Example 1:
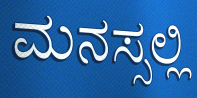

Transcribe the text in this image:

ಮನಸ್ಸಲ್ಲಿ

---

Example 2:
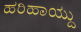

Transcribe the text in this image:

ಹರಿಹಾಯ್ದು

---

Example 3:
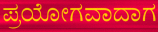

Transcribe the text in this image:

ಪ್ರಯೋಗವಾದಾಗ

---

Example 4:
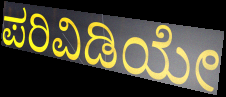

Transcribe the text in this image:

ಪರಿವಿಡಿಯೇ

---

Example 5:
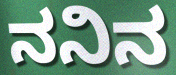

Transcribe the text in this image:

ನನಿನ